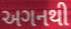
અગનથી